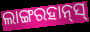
ଲାଙ୍ଗରହାନ୍‌ସ୍